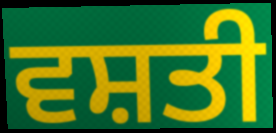
ਵਸ਼ਤੀ